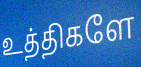
உத்திகளே